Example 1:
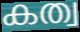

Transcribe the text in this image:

കത്വ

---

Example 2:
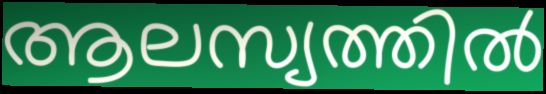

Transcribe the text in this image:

ആലസ്യത്തിൽ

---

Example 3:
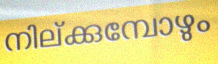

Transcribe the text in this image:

നില്ക്കുമ്പോഴും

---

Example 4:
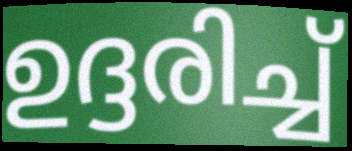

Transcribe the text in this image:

ഉദ്ദരിച്ച്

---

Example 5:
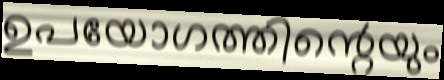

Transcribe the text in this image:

ഉപയോഗത്തിന്റെയും